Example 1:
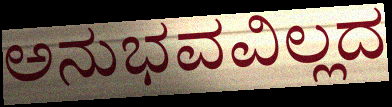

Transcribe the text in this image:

ಅನುಭವವಿಲ್ಲದ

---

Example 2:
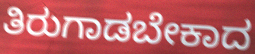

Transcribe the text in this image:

ತಿರುಗಾಡಬೇಕಾದ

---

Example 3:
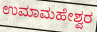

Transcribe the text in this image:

ಉಮಾಮಹೇಶ್ವರ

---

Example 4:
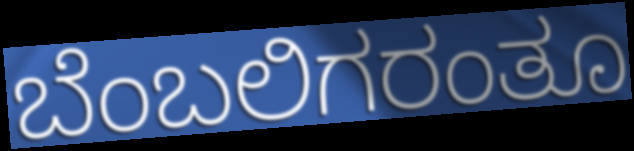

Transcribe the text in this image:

ಬೆಂಬಲಿಗರಂತೂ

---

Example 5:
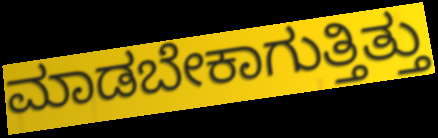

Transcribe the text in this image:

ಮಾಡಬೇಕಾಗುತ್ತಿತ್ತು